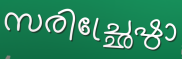
സരിച്ഛ്രേഷ്ഠാ